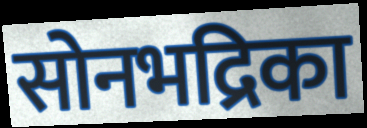
सोनभद्रिका